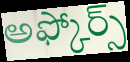
అఫ్కోర్స్